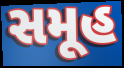
સમૂહ